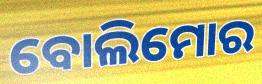
ବୋଲିମୋର